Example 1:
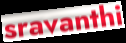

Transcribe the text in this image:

sravanthi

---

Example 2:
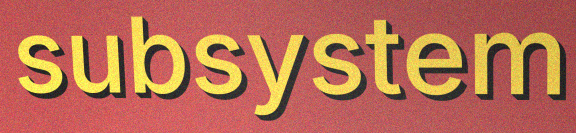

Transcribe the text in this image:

subsystem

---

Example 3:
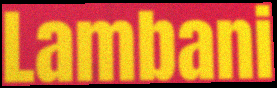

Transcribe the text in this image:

Lambani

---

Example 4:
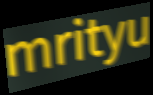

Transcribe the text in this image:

mrityu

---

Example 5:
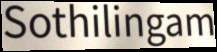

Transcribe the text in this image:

Sothilingam